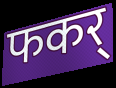
फकर्